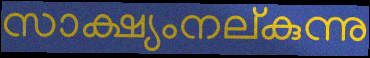
സാക്ഷ്യംനല്കുന്നു